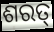
ଶରତ୍